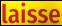
laisse